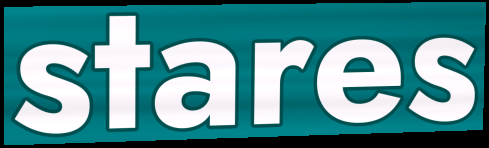
stares